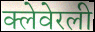
क्लेवेरली